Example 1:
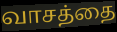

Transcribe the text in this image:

வாசத்தை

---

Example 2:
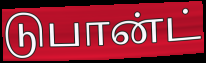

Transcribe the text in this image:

டுபான்ட்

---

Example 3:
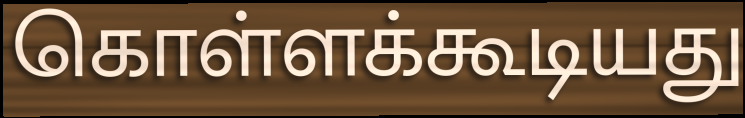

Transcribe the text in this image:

கொள்ளக்கூடியது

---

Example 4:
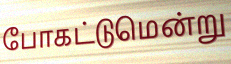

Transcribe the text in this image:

போகட்டுமென்று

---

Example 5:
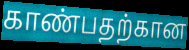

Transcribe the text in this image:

காண்பதற்கான